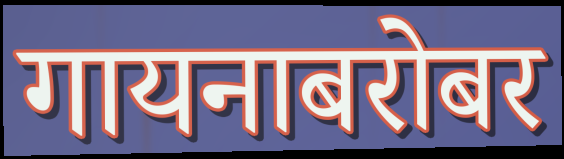
गायनाबरोबर